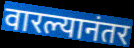
वारल्यानंतर